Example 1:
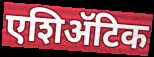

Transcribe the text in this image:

एशिॲटिक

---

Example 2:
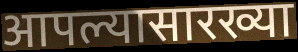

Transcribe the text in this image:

आपल्यासारख्या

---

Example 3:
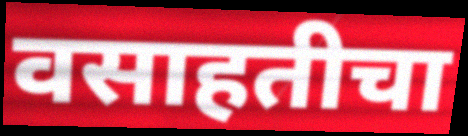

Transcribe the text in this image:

वसाहतीचा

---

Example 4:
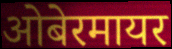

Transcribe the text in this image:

ओबेरमायर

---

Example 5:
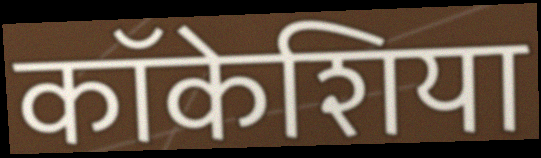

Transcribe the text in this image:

कॉकेशिया